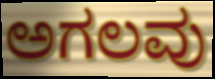
ಅಗಲವು